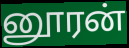
னூரன்